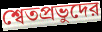
শ্বেতপ্রভুদের